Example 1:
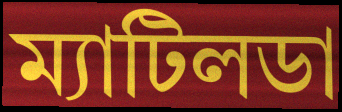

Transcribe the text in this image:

ম্যাটিলডা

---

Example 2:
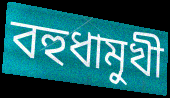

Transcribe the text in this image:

বহুধামুখী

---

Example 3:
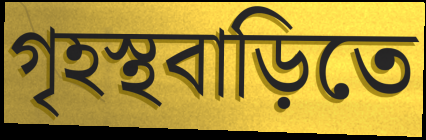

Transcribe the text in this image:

গৃহস্থবাড়িতে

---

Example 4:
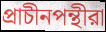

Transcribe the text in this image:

প্রাচীনপন্থীরা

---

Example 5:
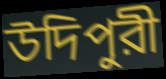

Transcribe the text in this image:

উদিপুরী